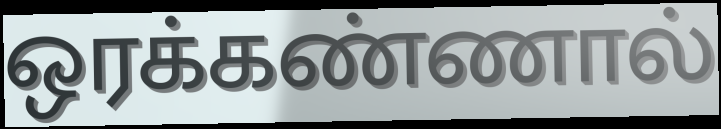
ஒரக்கண்ணால்